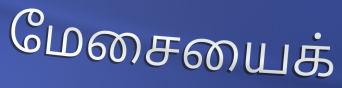
மேசையைக்